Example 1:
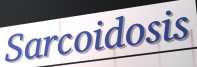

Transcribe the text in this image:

Sarcoidosis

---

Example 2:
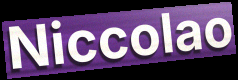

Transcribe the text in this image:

Niccolao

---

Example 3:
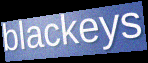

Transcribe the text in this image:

blackeys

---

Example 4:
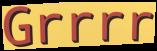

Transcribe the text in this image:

Grrrr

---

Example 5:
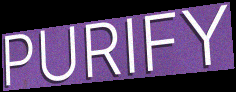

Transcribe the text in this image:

PURIFY